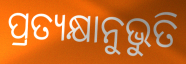
ପ୍ରତ୍ୟକ୍ଷାନୁଭୁତି